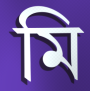
মি